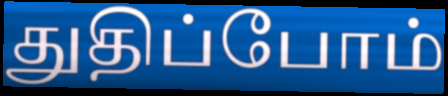
துதிப்போம்